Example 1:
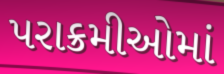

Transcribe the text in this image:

પરાક્રમીઓમાં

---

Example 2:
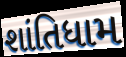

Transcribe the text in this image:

શાંતિધામ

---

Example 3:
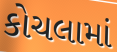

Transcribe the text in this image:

કોચલામાં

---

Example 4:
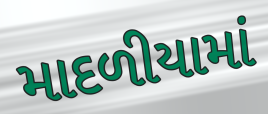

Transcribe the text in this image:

માદળીયામાં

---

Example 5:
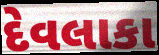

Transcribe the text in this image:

દેવલાકા